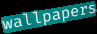
wallpapers